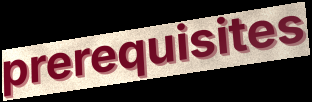
prerequisites